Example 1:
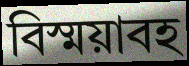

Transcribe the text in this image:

বিস্ময়াবহ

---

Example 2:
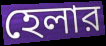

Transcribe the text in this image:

হেলার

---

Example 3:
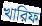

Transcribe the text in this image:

খারিফ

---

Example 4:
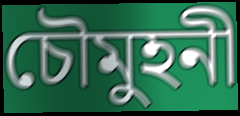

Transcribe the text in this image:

চৌমুহনী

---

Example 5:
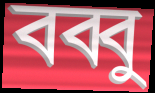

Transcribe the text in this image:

বব্বু